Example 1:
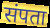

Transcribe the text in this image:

संपता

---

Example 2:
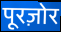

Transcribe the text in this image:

पूरज़ोर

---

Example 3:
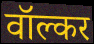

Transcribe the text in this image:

वॉल्कर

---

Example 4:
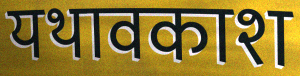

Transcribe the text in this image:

यथावकाश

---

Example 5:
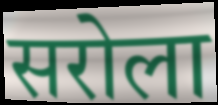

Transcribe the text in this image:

सरोला